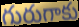
గురుగాకు